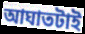
আঘাতটাই